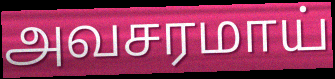
அவசரமாய்